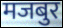
मजबुर